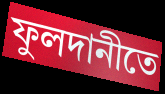
ফুলদানীতে